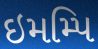
ઇમમ્પિ